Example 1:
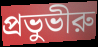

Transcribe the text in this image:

প্রভুভীরু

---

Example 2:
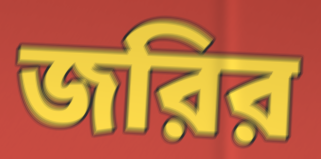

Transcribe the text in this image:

জরির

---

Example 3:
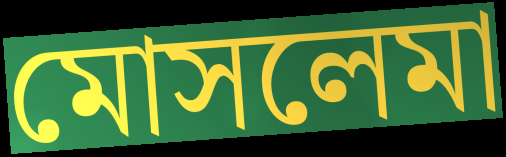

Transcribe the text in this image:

মোসলেমা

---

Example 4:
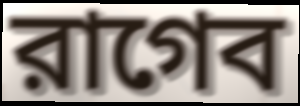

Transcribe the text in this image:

রাগেব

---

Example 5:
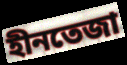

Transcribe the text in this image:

হীনতেজা